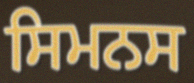
ਸਿਮਨਸ